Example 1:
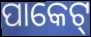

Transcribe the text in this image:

ପାକେଟ୍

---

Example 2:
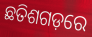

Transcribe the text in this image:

ଛତିଶଗଡ଼ରେ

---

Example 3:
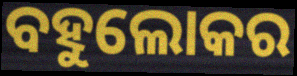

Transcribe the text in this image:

ବହୁଲୋକର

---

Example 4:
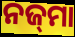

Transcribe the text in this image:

ନଜ୍‌ମା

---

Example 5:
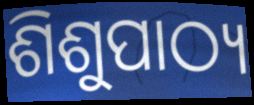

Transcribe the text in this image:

ଶିଶୁପାଠ୍ୟ